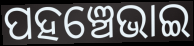
ପହଞ୍ଚେଭାଇ